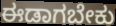
ಈಡಾಗಬೇಕು